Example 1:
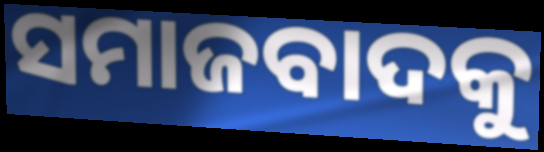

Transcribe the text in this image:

ସମାଜବାଦକୁ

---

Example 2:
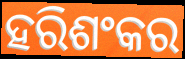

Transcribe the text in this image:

ହରିଶଂକର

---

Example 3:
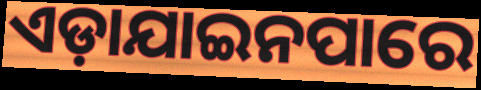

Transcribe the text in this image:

ଏଡ଼ାଯାଇନପାରେ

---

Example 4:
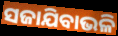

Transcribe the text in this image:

ସଜାଯିବାଭଳି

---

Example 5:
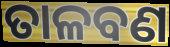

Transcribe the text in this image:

ତାଳବଣ